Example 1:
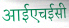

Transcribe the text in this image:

आईएचईसी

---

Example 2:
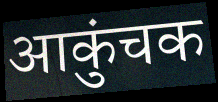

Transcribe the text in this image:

आकुंचक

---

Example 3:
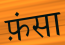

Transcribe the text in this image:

फ़ंसा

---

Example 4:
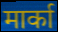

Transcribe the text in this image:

मार्का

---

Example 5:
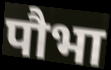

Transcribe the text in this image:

पौभा